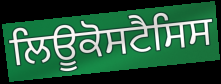
ਲਿਊਕੋਸਟੈਸਿਸ